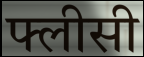
फ्लीसी